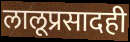
लालूप्रसादही